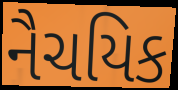
નૈચયિક